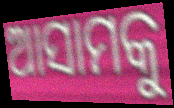
ଆସାମକୁ